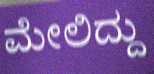
ಮೇಲಿದ್ದು